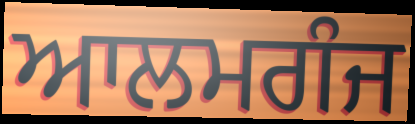
ਆਲਮਗੰਜ